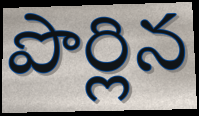
పొర్లిన